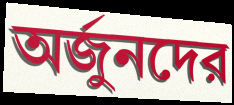
অর্জুনদের